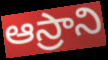
ఆస్రాని